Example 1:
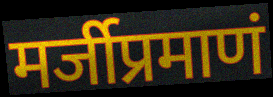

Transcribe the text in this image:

मर्जीप्रमाणं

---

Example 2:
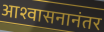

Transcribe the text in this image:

आश्वासनानंतर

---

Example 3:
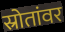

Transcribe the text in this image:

स्रोतांवर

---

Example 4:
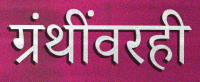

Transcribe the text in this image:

ग्रंथींवरही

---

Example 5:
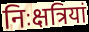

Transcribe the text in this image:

निःक्षत्रियां